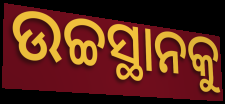
ଉଚ୍ଚସ୍ଥାନକୁ